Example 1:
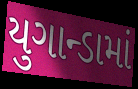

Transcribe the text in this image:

યુગાન્ડામાં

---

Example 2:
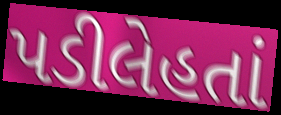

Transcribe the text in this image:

પડીલેહતાં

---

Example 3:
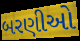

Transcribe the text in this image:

બરણીઓ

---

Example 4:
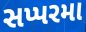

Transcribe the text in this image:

સપ્પરમા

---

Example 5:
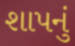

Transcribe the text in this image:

શાપનું